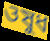
ওষুধ